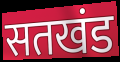
सतखंड